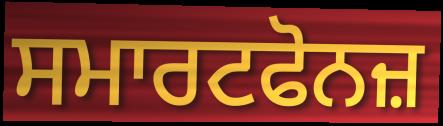
ਸਮਾਰਟਫੋਨਜ਼